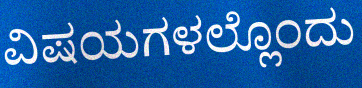
ವಿಷಯಗಳಲ್ಲೊಂದು